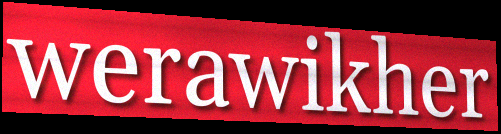
werawikher